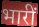
भारीं